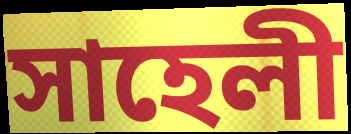
সাহেলী